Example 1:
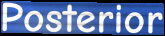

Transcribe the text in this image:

Posterior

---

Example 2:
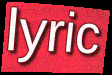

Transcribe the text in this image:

lyric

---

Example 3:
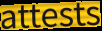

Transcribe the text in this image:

attests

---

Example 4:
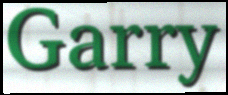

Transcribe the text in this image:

Garry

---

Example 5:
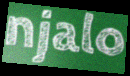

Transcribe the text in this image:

njalo